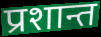
प्रशान्त